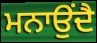
ਮਨਾਉਂਦੈ